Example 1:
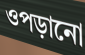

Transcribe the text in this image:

ওপড়ানো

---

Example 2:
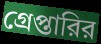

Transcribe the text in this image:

গ্রেপ্তারির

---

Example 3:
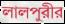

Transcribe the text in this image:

লালপুরীর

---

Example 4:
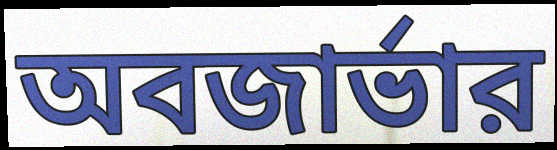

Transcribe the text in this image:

অবজার্ভার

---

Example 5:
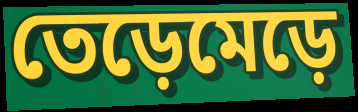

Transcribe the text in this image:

তেড়েমেড়ে